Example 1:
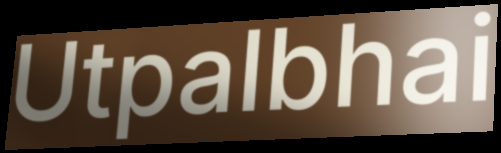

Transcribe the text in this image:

Utpalbhai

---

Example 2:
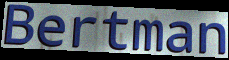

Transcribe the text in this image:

Bertman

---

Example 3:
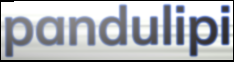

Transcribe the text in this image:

pandulipi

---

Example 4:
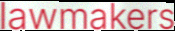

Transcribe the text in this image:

lawmakers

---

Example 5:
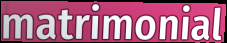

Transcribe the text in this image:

matrimonial